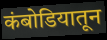
कंबोडियातून